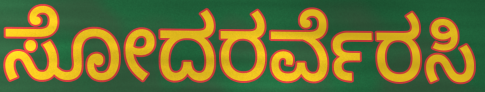
ಸೋದರರ್ವೆರಸಿ